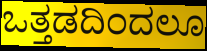
ಒತ್ತಡದಿಂದಲೂ